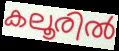
കലൂരിൽ